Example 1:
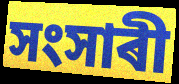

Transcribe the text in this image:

সংসাৰী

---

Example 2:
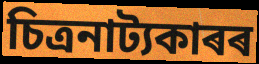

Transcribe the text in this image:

চিত্ৰনাট্যকাৰৰ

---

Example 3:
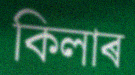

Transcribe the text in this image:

কিলাৰ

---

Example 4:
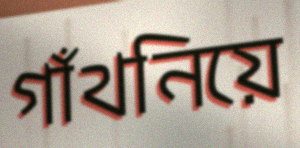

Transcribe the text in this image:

গাঁথনিয়ে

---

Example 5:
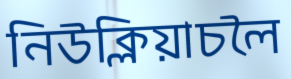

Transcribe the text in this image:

নিউক্লিয়াচলৈ